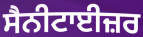
ਸੈਨੀਟਾਈਜ਼ਰ